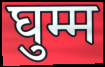
घुम्म